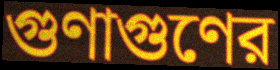
গুণাগুণের